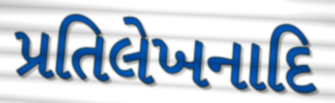
પ્રતિલેખનાદિ